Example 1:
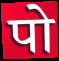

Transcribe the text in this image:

पो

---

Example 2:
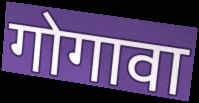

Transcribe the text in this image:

गोगावा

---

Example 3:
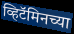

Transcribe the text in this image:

व्हिटॅमिनच्या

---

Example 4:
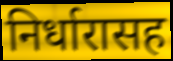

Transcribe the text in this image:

निर्धारासह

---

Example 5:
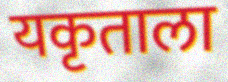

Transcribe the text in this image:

यकृताला